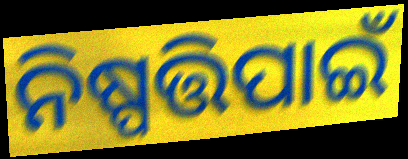
ନିଷ୍ପତ୍ତିପାଇଁ